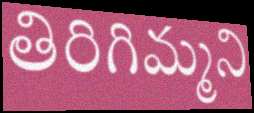
తిరిగిమ్మని